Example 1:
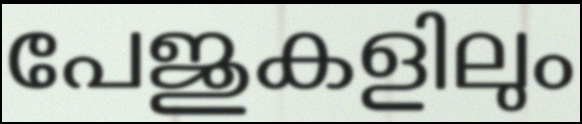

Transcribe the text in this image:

പേജുകളിലും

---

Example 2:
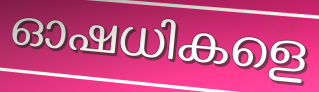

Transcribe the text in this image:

ഓഷധികളെ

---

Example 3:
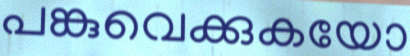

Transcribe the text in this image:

പങ്കുവെക്കുകയോ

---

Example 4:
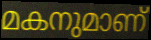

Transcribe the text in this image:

മകനുമാണ്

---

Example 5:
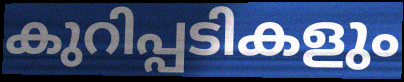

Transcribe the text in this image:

കുറിപ്പടികളും